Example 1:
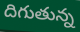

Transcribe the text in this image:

దిగుతున్న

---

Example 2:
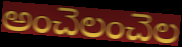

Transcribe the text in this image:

అంచెలంచెల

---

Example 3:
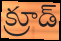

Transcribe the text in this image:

క్రూడ్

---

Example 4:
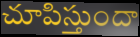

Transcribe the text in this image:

చూపిస్తుందా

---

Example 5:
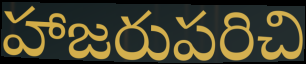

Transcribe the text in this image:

హాజరుపరిచి